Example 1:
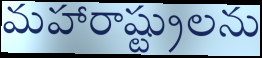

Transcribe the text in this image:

మహారాష్ట్రులను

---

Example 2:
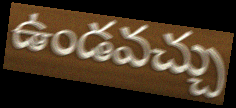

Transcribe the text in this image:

ఉండవచ్చు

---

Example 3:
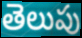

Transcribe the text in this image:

తెలుపు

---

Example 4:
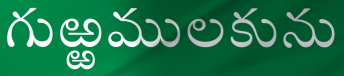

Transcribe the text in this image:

గుఱ్ఱములకును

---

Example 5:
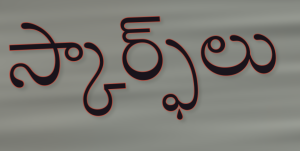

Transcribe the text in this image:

స్కార్ఫ్‌లు